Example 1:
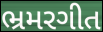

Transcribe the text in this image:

ભ્રમરગીત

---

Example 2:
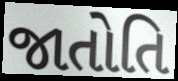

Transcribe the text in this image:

જાતોતિ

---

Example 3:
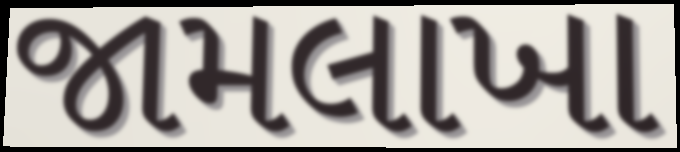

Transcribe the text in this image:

જામલાખા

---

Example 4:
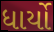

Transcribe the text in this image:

ધાર્યો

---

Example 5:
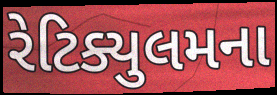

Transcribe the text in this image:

રેટિક્યુલમના